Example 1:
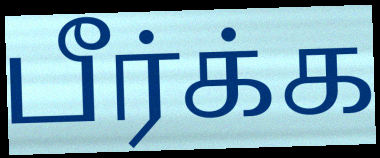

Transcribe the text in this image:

பீர்க்க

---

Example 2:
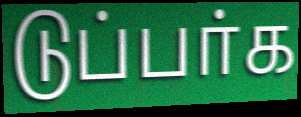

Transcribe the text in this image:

டுப்பர்க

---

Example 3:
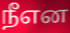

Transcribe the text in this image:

நீஎன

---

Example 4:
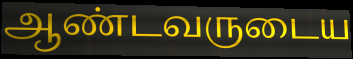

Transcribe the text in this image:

ஆண்டவருடைய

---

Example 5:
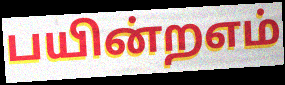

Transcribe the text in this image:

பயின்றஎம்